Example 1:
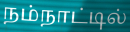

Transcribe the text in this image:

நம்நாட்டில்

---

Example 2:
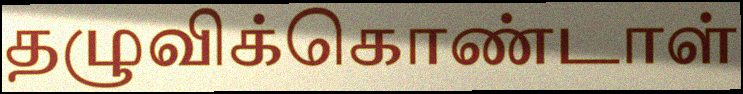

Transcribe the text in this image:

தழுவிக்கொண்டாள்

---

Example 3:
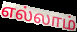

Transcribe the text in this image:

எல்லாம்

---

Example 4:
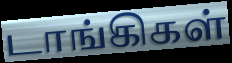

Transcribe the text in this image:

டாங்கிகள்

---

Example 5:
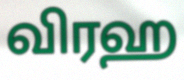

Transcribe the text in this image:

விரஹ